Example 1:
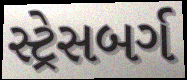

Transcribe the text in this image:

સ્ટ્રેસબર્ગ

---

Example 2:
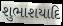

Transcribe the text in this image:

શુભાશયાદિ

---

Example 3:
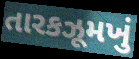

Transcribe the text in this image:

તારકઝૂમખું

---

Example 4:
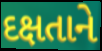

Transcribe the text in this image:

દક્ષતાને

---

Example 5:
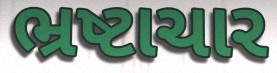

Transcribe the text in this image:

ભ્રષ્ટાચાર